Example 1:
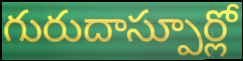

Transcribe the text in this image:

గురుదాస్పూర్లో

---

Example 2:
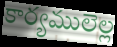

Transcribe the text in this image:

కార్యములెల్ల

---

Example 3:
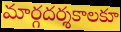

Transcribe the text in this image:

మార్గదర్శకాలకూ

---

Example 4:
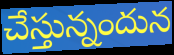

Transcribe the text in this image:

చేస్తున్నందున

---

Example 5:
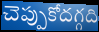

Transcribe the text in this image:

చెప్పుకోదగ్గది